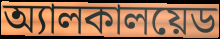
অ্যালকালয়েড